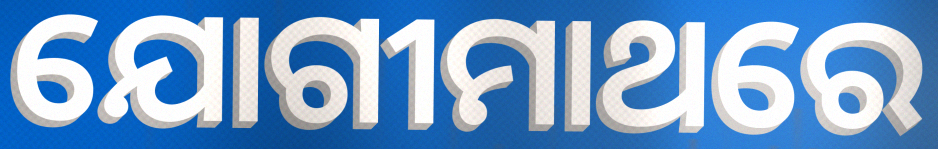
ଯୋଗୀମାଥରେ